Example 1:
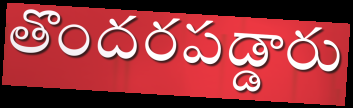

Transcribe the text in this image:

తొందరపడ్డారు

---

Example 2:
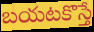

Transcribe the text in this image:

బయటకొస్తే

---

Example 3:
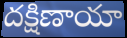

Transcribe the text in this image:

దక్షిణాయా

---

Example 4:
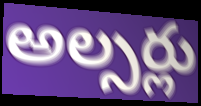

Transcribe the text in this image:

అల్సర్లు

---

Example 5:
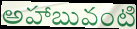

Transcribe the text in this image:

అహాబువంటి